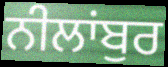
ਨੀਲਾਂਬੁਰ